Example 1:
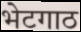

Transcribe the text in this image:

भेटगाठ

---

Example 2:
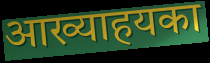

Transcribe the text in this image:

आख्याहयका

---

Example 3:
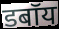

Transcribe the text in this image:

डबॉय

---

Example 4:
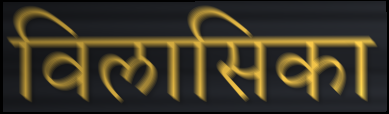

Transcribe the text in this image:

विलासिका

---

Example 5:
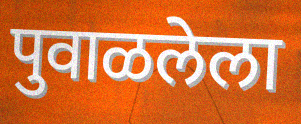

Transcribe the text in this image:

पुवाळलेला